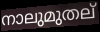
നാലുമുതല്